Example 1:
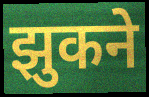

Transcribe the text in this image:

झुकने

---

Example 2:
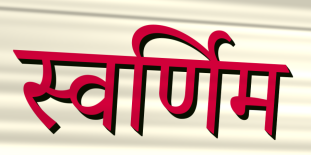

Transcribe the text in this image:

स्वर्णिम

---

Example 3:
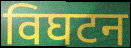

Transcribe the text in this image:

विघटन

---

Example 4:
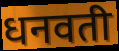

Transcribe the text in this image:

धनवती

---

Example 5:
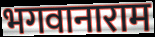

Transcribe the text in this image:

भगवानाराम